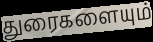
துரைகளையும்